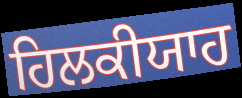
ਹਿਲਕੀਯਾਹ